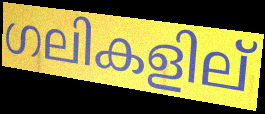
ഗലികളില്